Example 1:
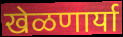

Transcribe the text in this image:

खेळणार्या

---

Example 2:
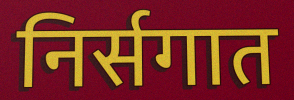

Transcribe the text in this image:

निर्सगात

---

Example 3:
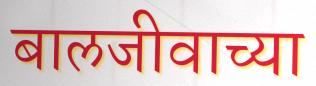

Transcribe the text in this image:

बालजीवाच्या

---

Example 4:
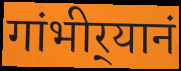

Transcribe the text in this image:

गांभीर्यानं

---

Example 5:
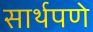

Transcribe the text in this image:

सार्थपणे